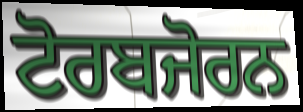
ਟੋਰਬਜੋਰਨ